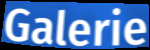
Galerie